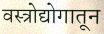
वस्त्रोद्योगातून